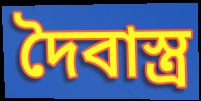
দৈবাস্ত্র